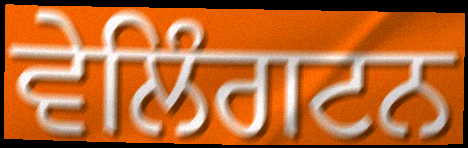
ਵੇਲਿੰਗਟਨ